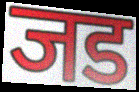
जड